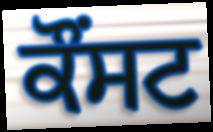
ਕੌਂਸਟ